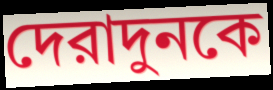
দেরাদুনকে